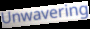
Unwavering